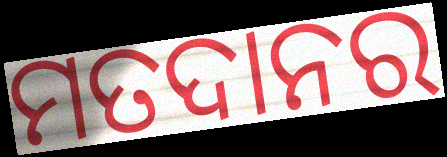
ମତଦାନର